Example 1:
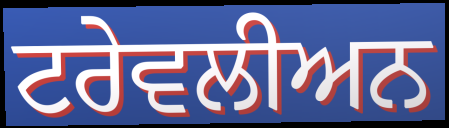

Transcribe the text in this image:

ਟਰੇਵਲੀਅਨ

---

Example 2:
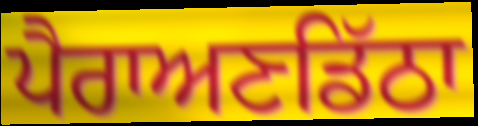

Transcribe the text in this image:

ਪੈਰਾਅਣਡਿੱਠਾ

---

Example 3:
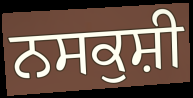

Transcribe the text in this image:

ਨਸਕੁਸ਼ੀ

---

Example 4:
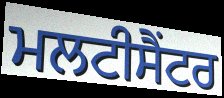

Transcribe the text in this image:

ਮਲਟੀਸੈਂਟਰ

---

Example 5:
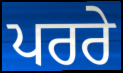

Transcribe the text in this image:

ਪਰਰੇ